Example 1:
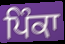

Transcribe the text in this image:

ਪਿੰਕਾ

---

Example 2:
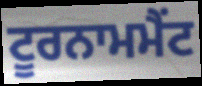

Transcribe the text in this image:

ਟੂਰਨਾਮਮੈਂਟ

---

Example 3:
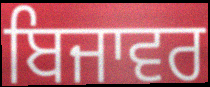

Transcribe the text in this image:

ਬਿਜਾਵਰ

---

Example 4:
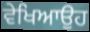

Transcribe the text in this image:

ਵੇਖਿਆਉਹ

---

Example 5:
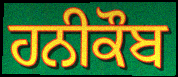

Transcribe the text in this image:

ਹਨੀਕੌਬ